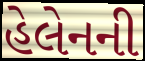
હેલેનની